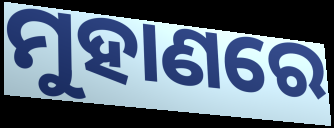
ମୁହାଣରେ